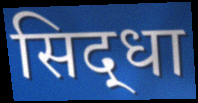
सिद्धा